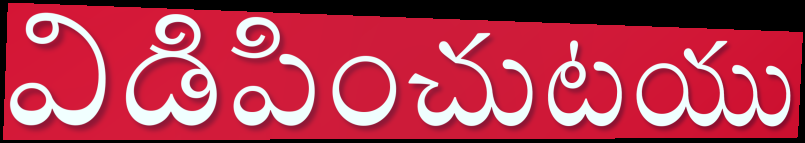
విడిపించుటయు